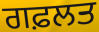
ਗਫ਼ਲਤ